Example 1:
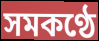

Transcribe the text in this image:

সমকণ্ঠে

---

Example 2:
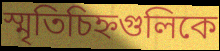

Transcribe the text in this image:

স্মৃতিচিহ্নগুলিকে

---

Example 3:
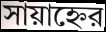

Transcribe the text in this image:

সায়াহ্নের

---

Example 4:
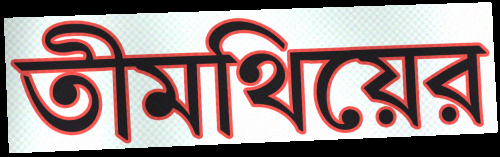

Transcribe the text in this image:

তীমথিয়ের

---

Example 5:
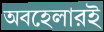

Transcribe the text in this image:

অবহেলারই